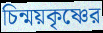
চিন্ময়কৃষ্ণের